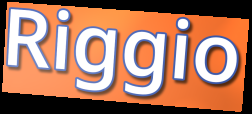
Riggio